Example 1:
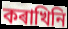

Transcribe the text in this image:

কৰাখিনি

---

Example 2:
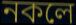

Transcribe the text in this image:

নকলে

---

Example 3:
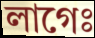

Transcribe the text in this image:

লাগেঃ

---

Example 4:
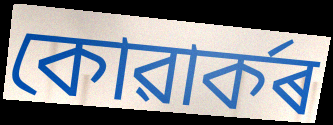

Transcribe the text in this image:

কোৱাৰ্কৰ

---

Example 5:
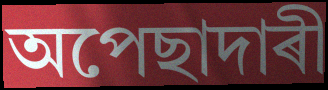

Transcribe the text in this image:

অপেছাদাৰী